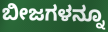
ಬೀಜಗಳನ್ನೂ